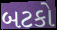
બટકો